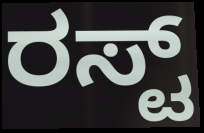
ರಸ್ಟ್